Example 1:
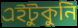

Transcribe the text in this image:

এইটুকুনি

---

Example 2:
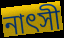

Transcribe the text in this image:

নাৎসী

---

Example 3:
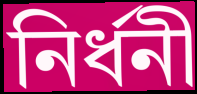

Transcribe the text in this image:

নির্ধনী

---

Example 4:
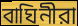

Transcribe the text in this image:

বাঘিনীরা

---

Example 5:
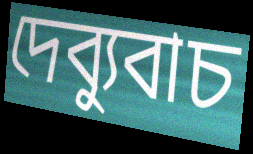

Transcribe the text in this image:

দেব্যুবাচ